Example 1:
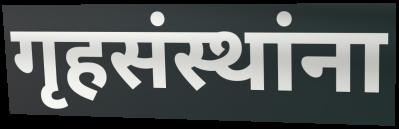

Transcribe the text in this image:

गृहसंस्थांना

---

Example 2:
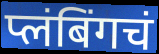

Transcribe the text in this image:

प्लंबिंगचं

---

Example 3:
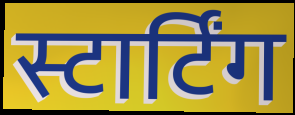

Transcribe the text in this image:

स्टार्टिंग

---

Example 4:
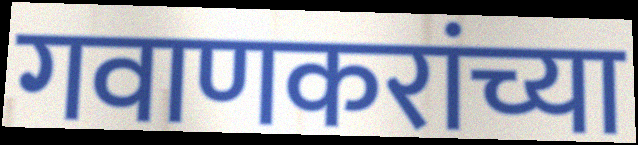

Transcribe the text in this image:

गवाणकरांच्या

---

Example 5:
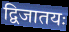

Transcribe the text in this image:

द्विजातयः